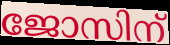
ജോസിന്